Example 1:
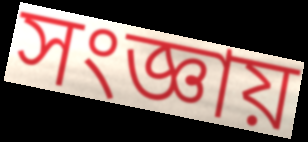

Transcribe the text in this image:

সংজ্ঞায়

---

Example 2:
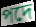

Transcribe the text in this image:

পদে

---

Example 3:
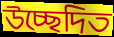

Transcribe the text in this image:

উচ্ছেদিত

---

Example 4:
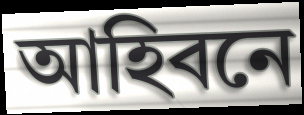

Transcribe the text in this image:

আহিবনে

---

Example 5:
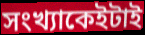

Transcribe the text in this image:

সংখ্যাকেইটাই